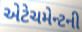
એટેચમેન્ટની